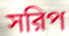
সরিপ